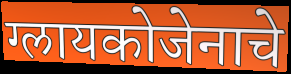
ग्लायकोजेनाचे